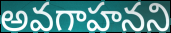
అవగాహనని